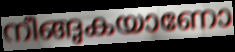
നീങ്ങുകയാണോ